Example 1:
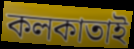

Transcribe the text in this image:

কলকাতাই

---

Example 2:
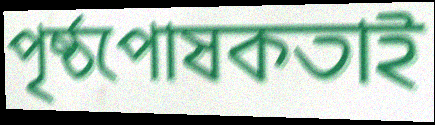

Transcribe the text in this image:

পৃষ্ঠপোষকতাই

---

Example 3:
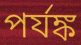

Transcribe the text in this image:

পর্যঙ্ক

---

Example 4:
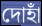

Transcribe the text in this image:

দোহাঁ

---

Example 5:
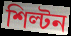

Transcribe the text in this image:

শিল্টন